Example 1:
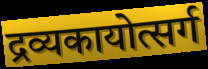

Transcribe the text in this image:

द्रव्यकायोत्सर्ग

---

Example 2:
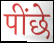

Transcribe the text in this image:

पींछे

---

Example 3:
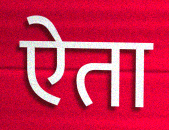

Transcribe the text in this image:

ऐता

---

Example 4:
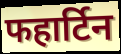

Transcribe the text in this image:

फहार्टिन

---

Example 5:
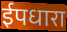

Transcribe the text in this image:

ईपधारा